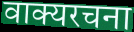
वाक्यरचना